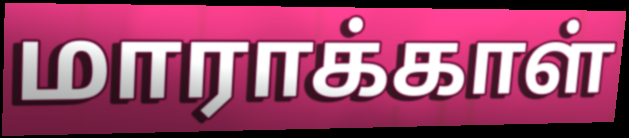
மாராக்காள்